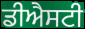
ਡੀਐਸਟੀ